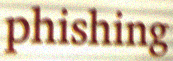
phishing